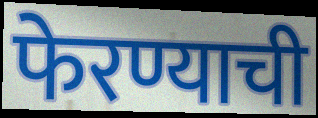
फेरण्याची